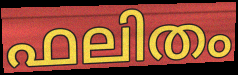
ഫലിതം